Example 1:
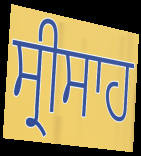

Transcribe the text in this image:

ਸ੍ਰੀਸਾਹ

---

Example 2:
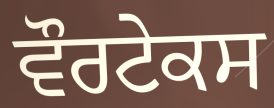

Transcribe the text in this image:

ਵੌਰਟੇਕਸ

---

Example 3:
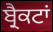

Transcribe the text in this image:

ਬ੍ਰੈਕਟਾਂ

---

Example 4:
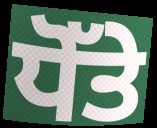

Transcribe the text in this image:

ਧੋੱਤੇ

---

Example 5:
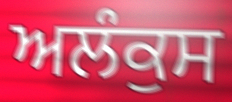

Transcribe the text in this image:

ਅਲੰਕੁਸ